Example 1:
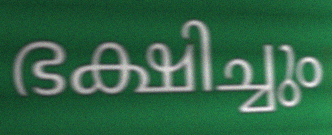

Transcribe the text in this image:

ഭക്ഷിച്ചും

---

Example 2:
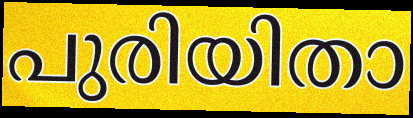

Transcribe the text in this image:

പുരിയിതാ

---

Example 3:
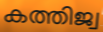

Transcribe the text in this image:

കത്തിജ്വ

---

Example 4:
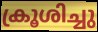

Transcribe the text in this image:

ക്രൂശിച്ചു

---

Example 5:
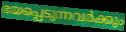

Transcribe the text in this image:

ഭയപ്പെടുന്നവർക്കും